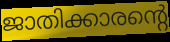
ജാതിക്കാരന്റെ